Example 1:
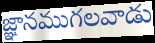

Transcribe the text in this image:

జ్ఞానముగలవాడు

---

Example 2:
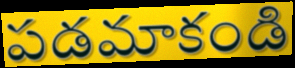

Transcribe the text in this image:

పడమాకండి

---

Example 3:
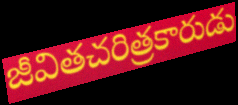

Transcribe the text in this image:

జీవితచరిత్రకారుడు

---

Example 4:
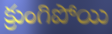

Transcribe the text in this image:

క్రుంగిపోయి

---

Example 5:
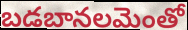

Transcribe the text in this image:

బడబానలమెంతో